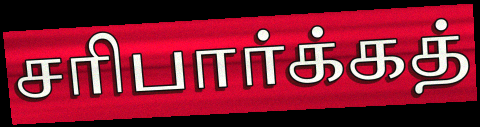
சரிபார்க்கத்